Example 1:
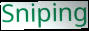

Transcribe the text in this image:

Sniping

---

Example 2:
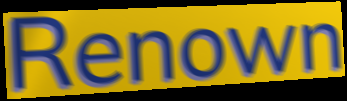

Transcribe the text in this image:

Renown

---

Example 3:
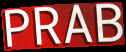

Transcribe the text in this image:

PRAB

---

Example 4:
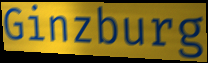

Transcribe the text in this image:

Ginzburg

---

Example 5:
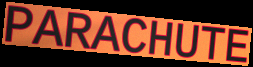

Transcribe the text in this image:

PARACHUTE